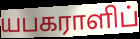
யபகராளிப்